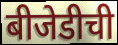
बीजेडीची